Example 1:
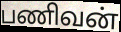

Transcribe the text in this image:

பணிவன்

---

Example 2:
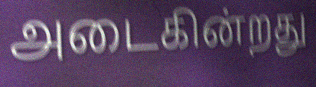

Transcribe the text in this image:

அடைகின்றது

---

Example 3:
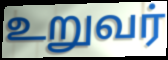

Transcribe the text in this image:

உறுவர்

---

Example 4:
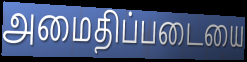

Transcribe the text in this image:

அமைதிப்படையை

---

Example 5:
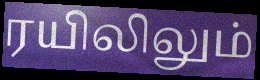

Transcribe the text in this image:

ரயிலிலும்